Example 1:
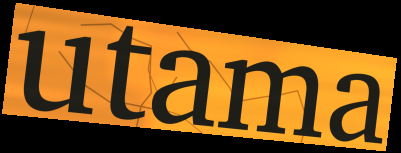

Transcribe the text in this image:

utama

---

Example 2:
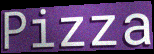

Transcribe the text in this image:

Pizza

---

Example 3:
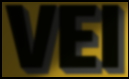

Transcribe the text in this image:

VEI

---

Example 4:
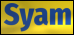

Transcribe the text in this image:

Syam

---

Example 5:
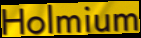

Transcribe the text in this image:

Holmium